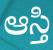
ఆస్తి